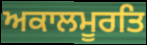
ਅਕਾਲਮੂਰਤਿ